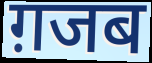
ग़जब